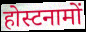
होस्टनामों